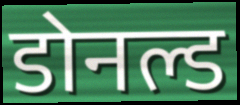
डोनल्‍ड